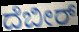
ದೆಬೀರ್